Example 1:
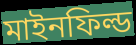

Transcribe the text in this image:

মাইনফিল্ড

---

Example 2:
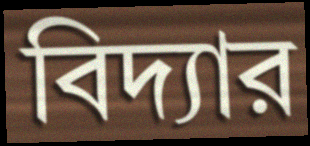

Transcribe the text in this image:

বিদ্যার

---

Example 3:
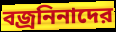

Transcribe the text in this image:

বজ্রনিনাদের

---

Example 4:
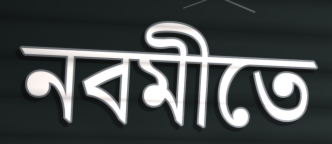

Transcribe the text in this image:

নবমীতে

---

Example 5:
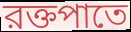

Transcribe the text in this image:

রক্তপাতে